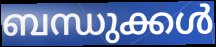
ബന്ധുക്കൾ